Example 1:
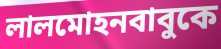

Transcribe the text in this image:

লালমোহনবাবুকে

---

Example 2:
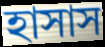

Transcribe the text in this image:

হাসাস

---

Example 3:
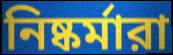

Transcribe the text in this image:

নিষ্কর্মারা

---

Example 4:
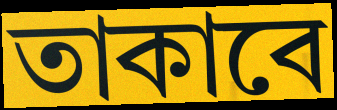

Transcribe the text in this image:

তাকাবে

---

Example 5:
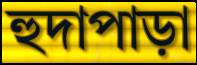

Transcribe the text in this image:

হুদাপাড়া